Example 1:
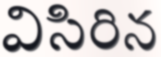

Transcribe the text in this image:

విసిరిన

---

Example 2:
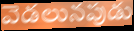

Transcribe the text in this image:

వెడలునపుడు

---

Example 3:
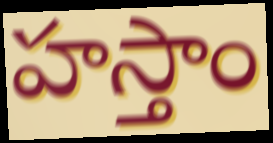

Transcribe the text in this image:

హస్తాం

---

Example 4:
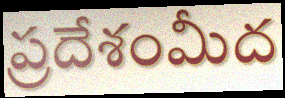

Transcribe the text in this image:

ప్రదేశంమీద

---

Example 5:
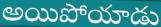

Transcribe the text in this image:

అయిపోయాడు